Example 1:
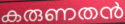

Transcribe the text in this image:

കരുണതൻ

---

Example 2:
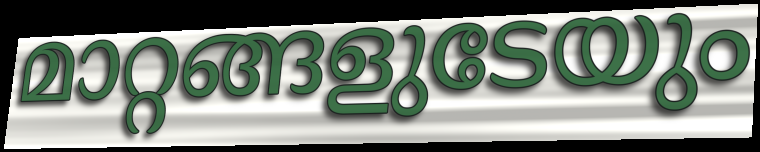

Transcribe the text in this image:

മാറ്റങ്ങളുടേയും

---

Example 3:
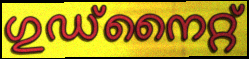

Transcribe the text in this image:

ഗുഡ്നൈറ്റ്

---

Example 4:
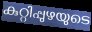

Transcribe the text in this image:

കുറ്റിപ്പുഴയുടെ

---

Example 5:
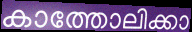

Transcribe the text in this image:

കാത്തോലിക്കാ